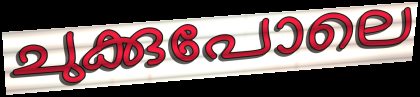
ചുക്കുപോലെ